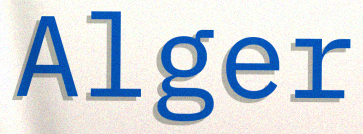
Alger